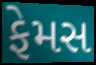
ફેમસ